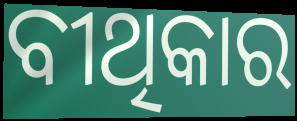
ବୀଥିକାର